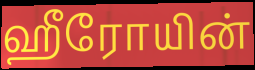
ஹீரோயின்